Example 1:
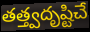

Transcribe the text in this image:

తత్త్వదృష్టిచే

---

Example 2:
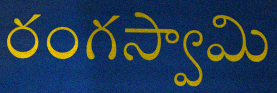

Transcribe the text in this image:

రంగస్వామి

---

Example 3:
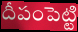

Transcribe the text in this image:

దీపంపెట్టి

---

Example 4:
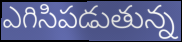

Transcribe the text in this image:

ఎగిసిపడుతున్న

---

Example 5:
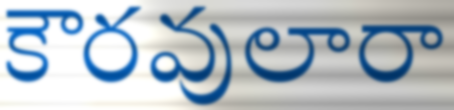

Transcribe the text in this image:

కౌరవులారా